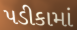
પડીકામાં